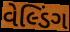
વેલ્ડિંગ